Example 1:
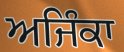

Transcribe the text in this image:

ਅਜਿੰਕਾ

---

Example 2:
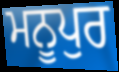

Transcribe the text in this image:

ਮਨੂਪੁਰ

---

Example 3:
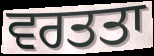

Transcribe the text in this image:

ਵਰਤਤਾ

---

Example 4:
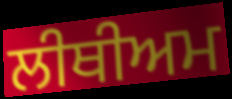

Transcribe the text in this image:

ਲੀਥੀਅਮ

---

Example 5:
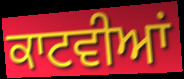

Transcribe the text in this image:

ਕਾਟਵੀਆਂ